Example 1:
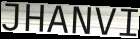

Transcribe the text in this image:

JHANVI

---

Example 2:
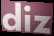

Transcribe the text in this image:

diz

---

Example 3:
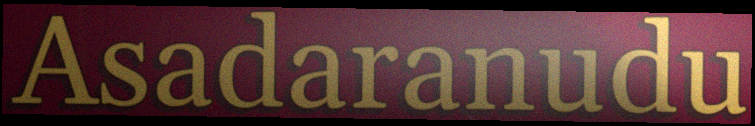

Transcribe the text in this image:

Asadaranudu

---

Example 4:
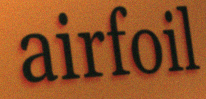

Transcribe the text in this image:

airfoil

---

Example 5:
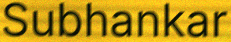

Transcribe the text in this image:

Subhankar